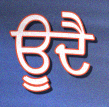
ਊੁਦੈ